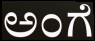
ಅಂಗೆ